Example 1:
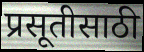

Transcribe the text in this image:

प्रसूतीसाठी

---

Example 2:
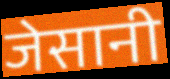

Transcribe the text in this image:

जेसानी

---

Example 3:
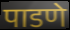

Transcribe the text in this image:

पाडणे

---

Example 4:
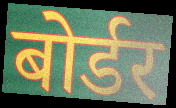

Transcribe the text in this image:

बोर्डर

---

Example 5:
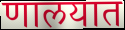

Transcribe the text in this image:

णालयात